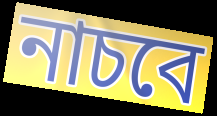
নাচবে